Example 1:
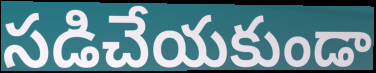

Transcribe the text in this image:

సడిచేయకుండా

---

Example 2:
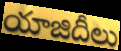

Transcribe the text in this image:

యాజిదీలు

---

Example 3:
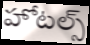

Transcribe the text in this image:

హోటల్స్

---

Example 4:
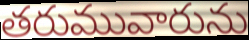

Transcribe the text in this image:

తరుమువారును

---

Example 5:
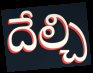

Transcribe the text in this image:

దేల్చి